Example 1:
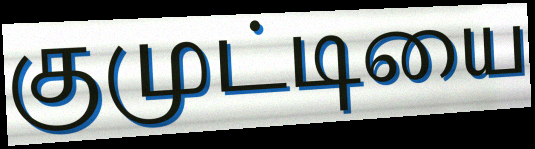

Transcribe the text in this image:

குமுட்டியை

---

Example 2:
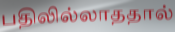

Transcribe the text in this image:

பதிலில்லாததால்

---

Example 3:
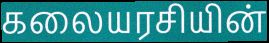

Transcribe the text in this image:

கலையரசியின்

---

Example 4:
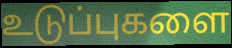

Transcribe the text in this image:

உடுப்புகளை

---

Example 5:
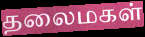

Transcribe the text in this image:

தலைமகள்